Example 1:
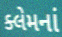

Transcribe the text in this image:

ક્લેમનાં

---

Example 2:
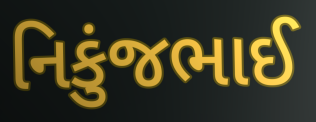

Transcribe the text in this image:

નિકુંજભાઈ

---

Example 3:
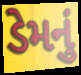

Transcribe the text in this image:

ડેમનું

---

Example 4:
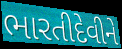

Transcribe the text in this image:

ભારતીદેવીને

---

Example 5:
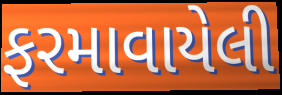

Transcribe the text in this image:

ફરમાવાયેલી